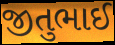
જીતુભાઈ